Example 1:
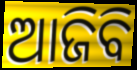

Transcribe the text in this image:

ଆଜିବି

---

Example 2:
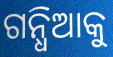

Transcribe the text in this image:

ଗନ୍ଧିଆକୁ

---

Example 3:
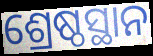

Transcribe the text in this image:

ଶ୍ରେଷ୍ଠସ୍ଥାନ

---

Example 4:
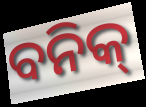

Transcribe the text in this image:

ବନିକ୍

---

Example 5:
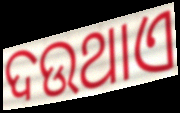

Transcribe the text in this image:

ଦଉଥାଏ